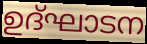
ഉദ്ഘാടന